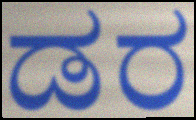
ಡರ